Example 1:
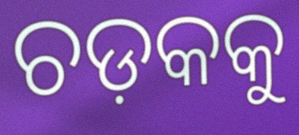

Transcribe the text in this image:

ଚଡ଼କକୁ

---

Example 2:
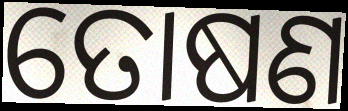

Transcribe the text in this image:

ତୋଷଣ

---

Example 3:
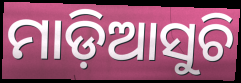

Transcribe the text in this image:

ମାଡ଼ିଆସୁଚି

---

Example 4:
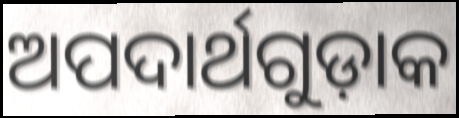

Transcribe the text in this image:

ଅପଦାର୍ଥଗୁଡ଼ାକ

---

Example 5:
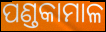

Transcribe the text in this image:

ପଣ୍ଡକାମାଳ